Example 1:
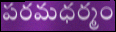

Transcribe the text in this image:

పరమధర్మం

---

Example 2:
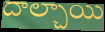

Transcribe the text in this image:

దాల్చాయి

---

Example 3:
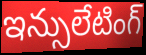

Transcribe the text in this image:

ఇన్సులేటింగ్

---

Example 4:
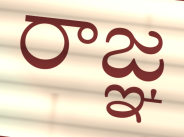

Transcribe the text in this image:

రాజ్ఞ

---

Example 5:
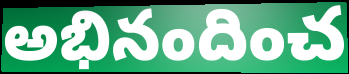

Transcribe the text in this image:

అభినందించ